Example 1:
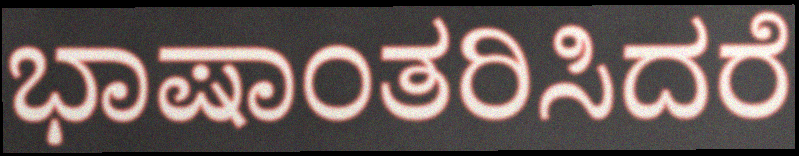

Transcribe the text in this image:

ಭಾಷಾಂತರಿಸಿದರೆ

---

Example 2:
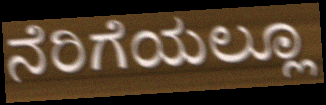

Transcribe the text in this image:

ನೆರಿಗೆಯಲ್ಲೂ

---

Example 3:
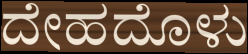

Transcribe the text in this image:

ದೇಹದೊಳು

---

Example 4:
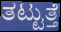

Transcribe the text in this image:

ತಟ್ಟುತ್ತೆ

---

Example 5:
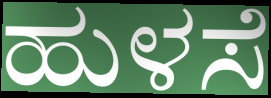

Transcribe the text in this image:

ಹುಳಸೆ